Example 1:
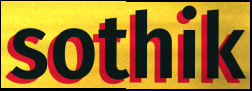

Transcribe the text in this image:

sothik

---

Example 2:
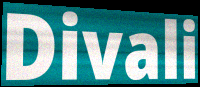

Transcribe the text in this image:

Divali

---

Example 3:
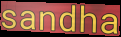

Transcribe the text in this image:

sandha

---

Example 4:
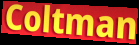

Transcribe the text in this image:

Coltman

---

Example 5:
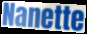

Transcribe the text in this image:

Nanette